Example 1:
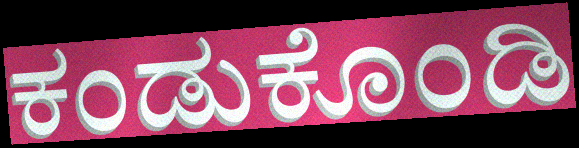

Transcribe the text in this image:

ಕಂಡುಕೊಂಡಿ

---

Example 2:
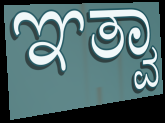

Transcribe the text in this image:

ಞತ್ವಾ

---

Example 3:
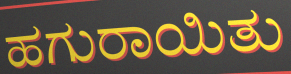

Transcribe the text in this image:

ಹಗುರಾಯಿತು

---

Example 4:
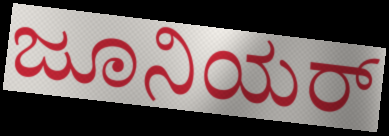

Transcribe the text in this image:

ಜೂನಿಯರ್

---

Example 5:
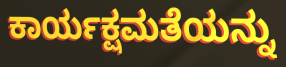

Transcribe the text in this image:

ಕಾರ್ಯಕ್ಷಮತೆಯನ್ನು